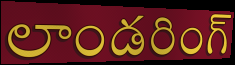
లాండరింగ్